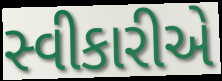
સ્વીકારીએ